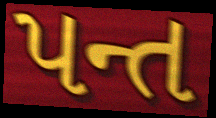
પન્ત